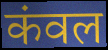
कंवल